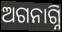
ଅଗନାଗ୍ନି